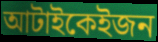
আটাইকেইজন